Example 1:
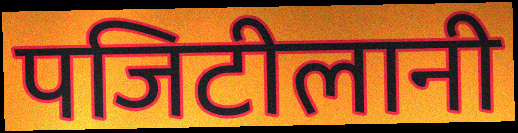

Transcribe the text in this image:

पजिटीलानी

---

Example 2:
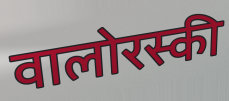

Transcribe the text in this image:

वालोरस्की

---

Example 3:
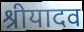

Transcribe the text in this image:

श्रीयादव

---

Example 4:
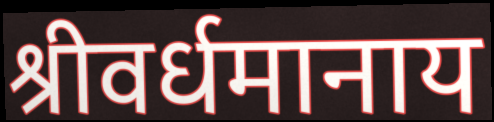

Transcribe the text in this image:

श्रीवर्धमानाय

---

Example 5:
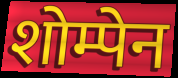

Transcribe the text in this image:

शोम्पेन